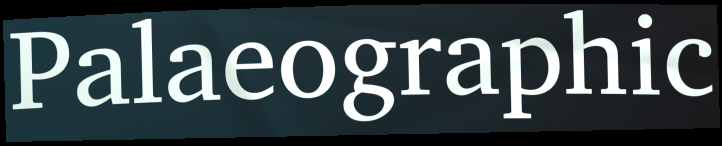
Palaeographic